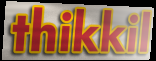
thikkil